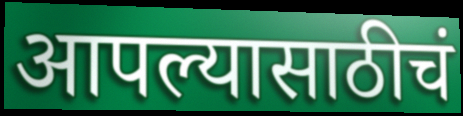
आपल्यासाठीचं